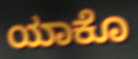
ಯಾಕೊ